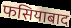
फसियाबाद